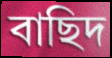
বাছিদ